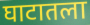
घाटातला